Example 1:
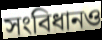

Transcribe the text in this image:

সংবিধানও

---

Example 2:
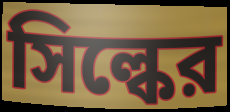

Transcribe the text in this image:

সিল্কের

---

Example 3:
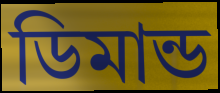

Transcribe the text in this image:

ডিমান্ড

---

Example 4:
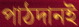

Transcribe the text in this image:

পাঠদানই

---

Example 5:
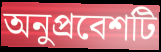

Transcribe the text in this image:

অনুপ্রবেশটি